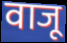
वाजू